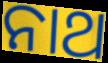
ନାଥ